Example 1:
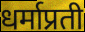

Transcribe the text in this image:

धर्माप्रती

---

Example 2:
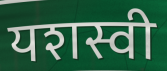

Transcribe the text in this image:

यशस्वी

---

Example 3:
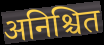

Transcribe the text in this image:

अनिश्चित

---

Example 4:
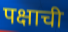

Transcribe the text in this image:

पक्षाची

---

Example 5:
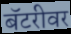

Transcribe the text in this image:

बॅटरीवर